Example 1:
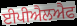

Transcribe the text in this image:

ਈਪੀਐਲਐਫ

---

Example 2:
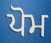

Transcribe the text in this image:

ਪੋਮ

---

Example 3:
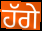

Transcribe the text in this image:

ਹੱਗੇ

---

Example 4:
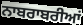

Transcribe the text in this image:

ਨਾਬਰਾਬਰੀਆਂ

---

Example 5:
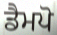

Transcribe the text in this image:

ਡੈਮਪੋ